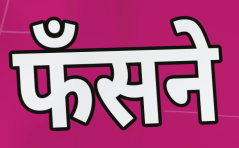
फँसने